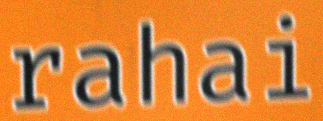
rahai